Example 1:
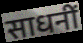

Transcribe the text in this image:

साधनीं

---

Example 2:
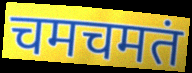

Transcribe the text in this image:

चमचमतं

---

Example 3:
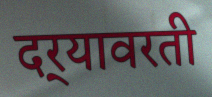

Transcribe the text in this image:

दर्यावरती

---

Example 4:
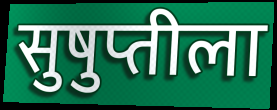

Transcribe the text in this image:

सुषुप्तीला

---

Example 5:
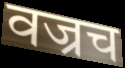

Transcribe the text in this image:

वज्रच